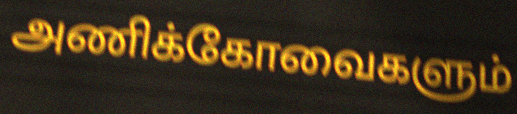
அணிக்கோவைகளும்